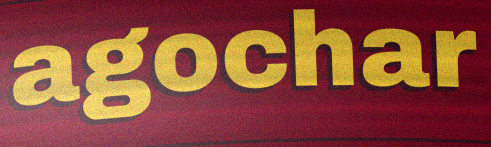
agochar